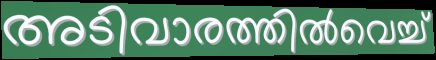
അടിവാരത്തിൽവെച്ച്